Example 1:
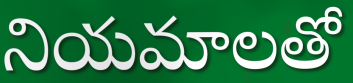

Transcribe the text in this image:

నియమాలతో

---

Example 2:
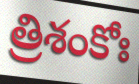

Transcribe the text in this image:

త్రిశంకోః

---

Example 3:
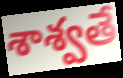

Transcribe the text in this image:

శాశ్వతే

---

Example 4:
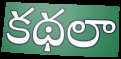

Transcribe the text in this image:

కథలా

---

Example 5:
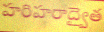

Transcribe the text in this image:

హరిహరాద్వైత